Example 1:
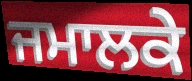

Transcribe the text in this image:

ਜਮਾਲਕੇ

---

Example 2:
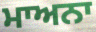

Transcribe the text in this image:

ਮਾਅਨਾ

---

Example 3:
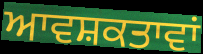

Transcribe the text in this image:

ਆਵਸ਼ਕਤਾਵਾਂ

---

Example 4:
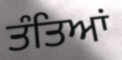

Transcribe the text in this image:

ਤੰਤਿਆਂ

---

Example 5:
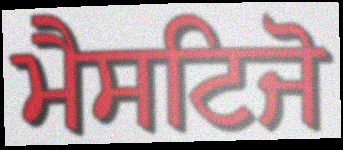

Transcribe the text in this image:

ਮੈਸਟਿਜੋ